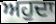
ਅਹੁਦਾ